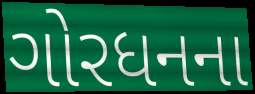
ગોરધનના